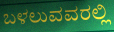
ಬಳಲುವವರಲ್ಲಿ